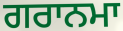
ਗਰਾਨਮਾ